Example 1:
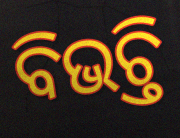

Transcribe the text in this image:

ବିଭଚ୍ତି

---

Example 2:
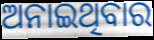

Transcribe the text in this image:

ଅନାଇଥିବାର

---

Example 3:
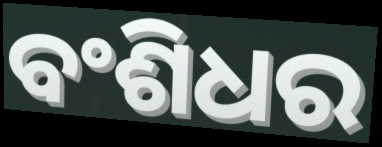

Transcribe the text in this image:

ବଂଶିଧର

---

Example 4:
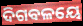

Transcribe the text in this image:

ଦିଗବଳୟେ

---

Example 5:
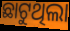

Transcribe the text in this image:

ଛାଟୁଥିଲା